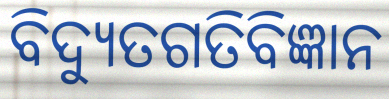
ବିଦ୍ୟୁତଗତିବିଜ୍ଞାନ